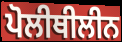
ਪੋਲੀਥੀਲੀਨ